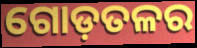
ଗୋଡ଼ତଳର